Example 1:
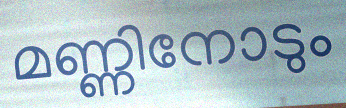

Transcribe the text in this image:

മണ്ണിനോടും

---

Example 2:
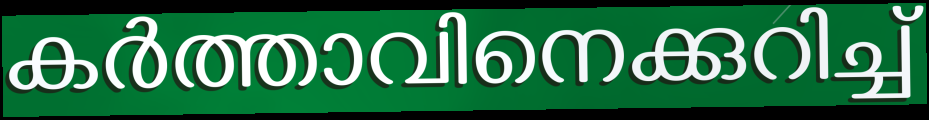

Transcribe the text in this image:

കർത്താവിനെക്കുറിച്ച്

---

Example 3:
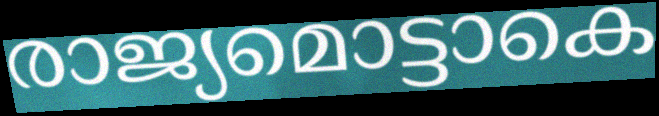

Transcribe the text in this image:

രാജ്യമൊട്ടാകെ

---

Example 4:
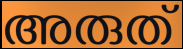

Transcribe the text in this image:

അരുത്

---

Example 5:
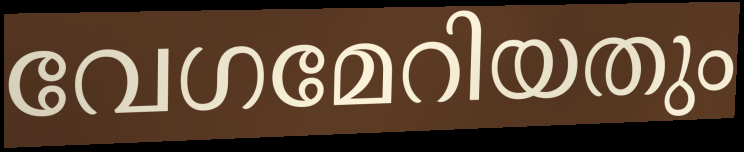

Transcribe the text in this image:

വേഗമേറിയതും